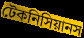
টেকনিসিয়ানস